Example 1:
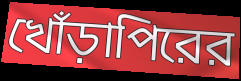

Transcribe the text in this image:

খোঁড়াপিরের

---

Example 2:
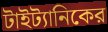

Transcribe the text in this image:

টাইট্যানিকের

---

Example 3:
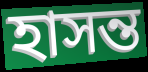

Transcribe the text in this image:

হাসন্ত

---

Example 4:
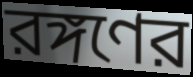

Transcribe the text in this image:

রঙ্গণের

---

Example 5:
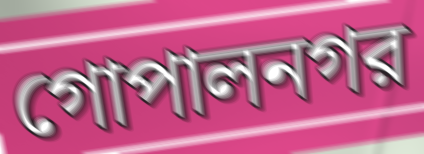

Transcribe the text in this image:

গোপালনগর